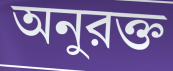
অনুরক্ত